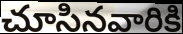
చూసినవారికి